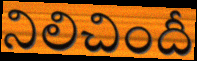
నిలిచిందీ